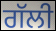
ਗੱਲੀ